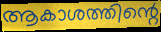
ആകാശത്തിന്റെ